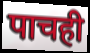
पाचही